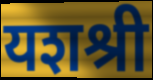
यशश्री